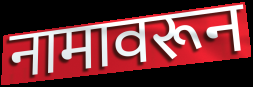
नामावरून